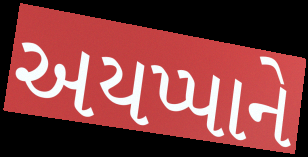
અયપ્પાને